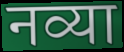
नव्या